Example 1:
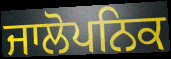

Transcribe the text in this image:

ਜਾਲੋਪਨਿਕ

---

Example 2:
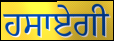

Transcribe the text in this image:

ਹਸਾਏਗੀ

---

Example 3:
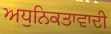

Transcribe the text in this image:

ਅਧੁਨਿਕਤਾਵਾਦੀ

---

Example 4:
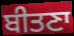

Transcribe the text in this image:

ਬੀਤਣਾ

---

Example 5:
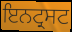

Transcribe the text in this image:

ਇਨਟ੍ਰਸਟ